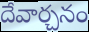
దేవార్చనం